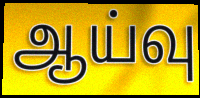
ஆய்வு